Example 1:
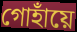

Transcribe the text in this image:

গোহাঁয়ে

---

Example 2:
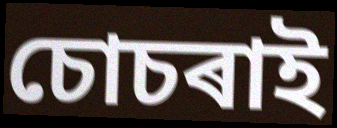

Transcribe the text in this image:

চোচৰাই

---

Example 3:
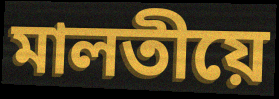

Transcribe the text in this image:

মালতীয়ে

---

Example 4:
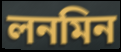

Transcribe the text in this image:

লনমিন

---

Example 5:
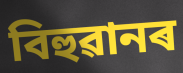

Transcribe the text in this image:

বিহুৱানৰ